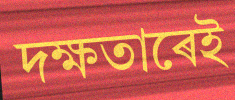
দক্ষতাৰেই